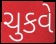
ચુકવે